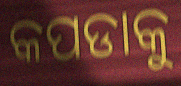
କପଡାକୁ